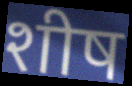
शीष